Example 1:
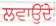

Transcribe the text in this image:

ਲਵਾਉਂਦੇ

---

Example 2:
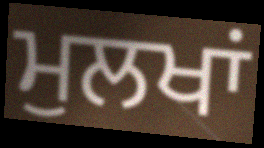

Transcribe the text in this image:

ਮੁਲਖਾਂ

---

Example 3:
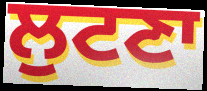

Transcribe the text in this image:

ਲੁਟਣਾ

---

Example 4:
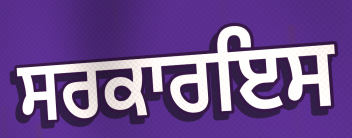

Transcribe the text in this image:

ਸਰਕਾਰਇਸ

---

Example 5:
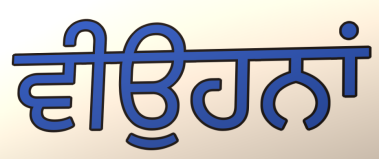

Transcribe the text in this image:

ਵੀਉਹਨਾਂ